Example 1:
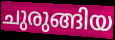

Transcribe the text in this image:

ചുരുങ്ങിയ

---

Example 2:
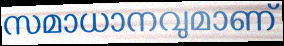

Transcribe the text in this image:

സമാധാനവുമാണ്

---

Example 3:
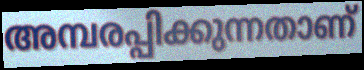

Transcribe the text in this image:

അമ്പരപ്പിക്കുന്നതാണ്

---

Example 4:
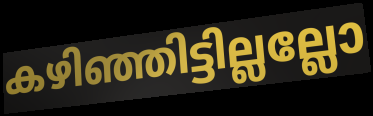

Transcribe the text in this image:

കഴിഞ്ഞിട്ടില്ലല്ലോ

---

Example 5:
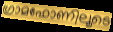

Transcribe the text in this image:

ഗ്രാമഫോണിലൂടെ